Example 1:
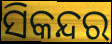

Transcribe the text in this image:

ସିକନ୍ଦର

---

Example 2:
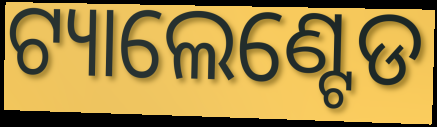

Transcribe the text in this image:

ଟ୍ୟାଲେଣ୍ଟେଡ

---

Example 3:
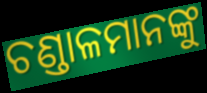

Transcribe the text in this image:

ଚଣ୍ଡାଳମାନଙ୍କୁ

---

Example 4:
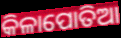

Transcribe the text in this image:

କିଳାପୋତିଆ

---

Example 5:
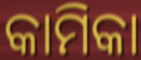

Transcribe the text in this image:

କାମିକା